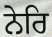
ਨੇਰਿ